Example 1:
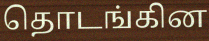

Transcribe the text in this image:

தொடங்கின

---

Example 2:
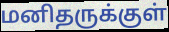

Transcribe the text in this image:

மனிதருக்குள்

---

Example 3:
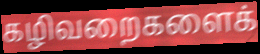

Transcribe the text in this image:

கழிவறைகளைக்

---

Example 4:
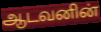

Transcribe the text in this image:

ஆடவனின்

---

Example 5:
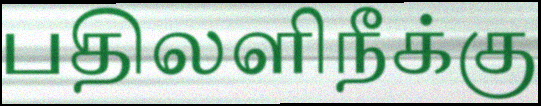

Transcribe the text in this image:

பதிலளிநீக்கு